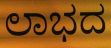
ಲಾಭದ